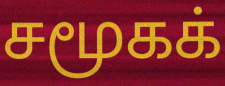
சமூகக்